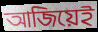
আজিয়েই